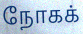
நோகக்